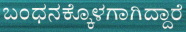
ಬಂಧನಕ್ಕೊಳಗಾಗಿದ್ದಾರೆ